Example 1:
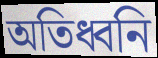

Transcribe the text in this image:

অতিধ্বনি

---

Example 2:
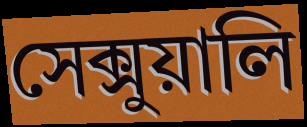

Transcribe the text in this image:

সেক্সুয়ালি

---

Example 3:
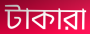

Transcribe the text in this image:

টাকারা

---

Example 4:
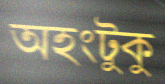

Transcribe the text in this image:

অহংটুকু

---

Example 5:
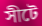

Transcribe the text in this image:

সীটে